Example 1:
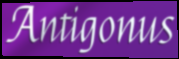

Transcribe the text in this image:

Antigonus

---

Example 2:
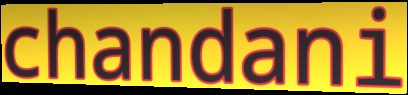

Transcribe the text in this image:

chandani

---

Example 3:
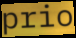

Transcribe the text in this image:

prio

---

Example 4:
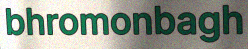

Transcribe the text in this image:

bhromonbagh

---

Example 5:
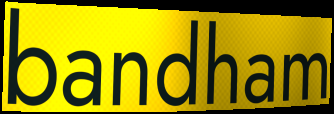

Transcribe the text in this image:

bandham